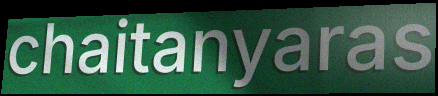
chaitanyaras